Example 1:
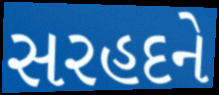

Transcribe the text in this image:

સરહદને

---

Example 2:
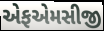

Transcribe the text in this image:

એફએમસીજી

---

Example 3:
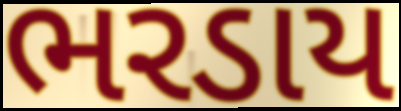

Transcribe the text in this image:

ભરડાય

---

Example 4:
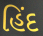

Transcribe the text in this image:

હિંદ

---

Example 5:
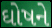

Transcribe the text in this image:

ઘોષને